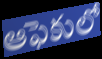
ఆఫెకులో